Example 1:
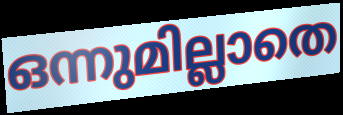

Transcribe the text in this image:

ഒന്നുമില്ലാതെ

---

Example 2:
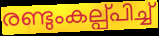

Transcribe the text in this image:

രണ്ടുംകല്പ്പിച്ച്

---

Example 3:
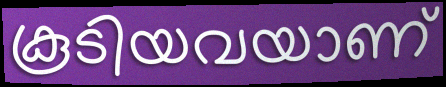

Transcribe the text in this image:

കൂടിയവയാണ്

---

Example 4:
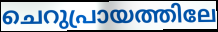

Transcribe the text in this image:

ചെറുപ്രായത്തിലേ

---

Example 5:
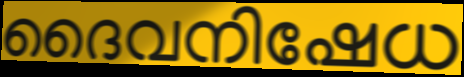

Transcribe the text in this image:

ദൈവനിഷേധ